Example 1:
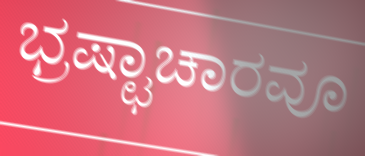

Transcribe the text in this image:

ಭ್ರಷ್ಟಾಚಾರವೂ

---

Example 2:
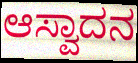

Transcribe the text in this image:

ಆಸ್ವಾದನ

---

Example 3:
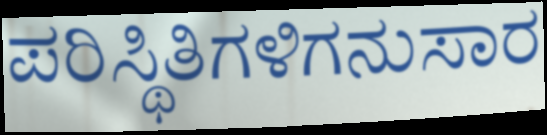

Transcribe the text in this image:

ಪರಿಸ್ಥಿತಿಗಳಿಗನುಸಾರ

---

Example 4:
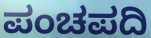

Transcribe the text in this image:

ಪಂಚಪದಿ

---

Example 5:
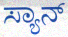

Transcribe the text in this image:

ಸ್ಯಾನ್